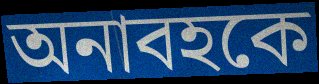
অনাবহকে